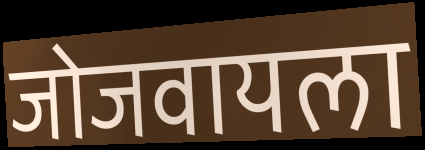
जोजवायला